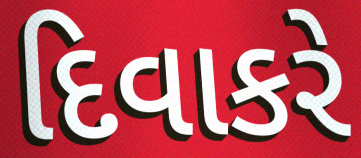
દિવાકરે